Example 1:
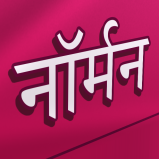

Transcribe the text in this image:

नॉर्मन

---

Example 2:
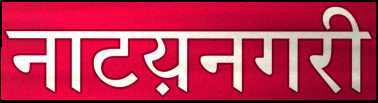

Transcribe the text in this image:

नाटय़नगरी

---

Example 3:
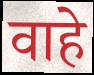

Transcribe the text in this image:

वाहे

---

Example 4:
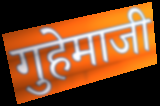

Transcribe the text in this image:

गुहेमाजी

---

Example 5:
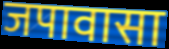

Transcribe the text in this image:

जपावासा